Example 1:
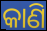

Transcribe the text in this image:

କାଣି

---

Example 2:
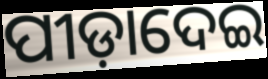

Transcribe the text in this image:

ପୀଡ଼ାଦେଇ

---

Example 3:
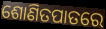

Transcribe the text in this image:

ଶୋଣିତପାତରେ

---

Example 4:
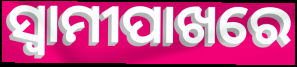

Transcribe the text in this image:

ସ୍ୱାମୀପାଖରେ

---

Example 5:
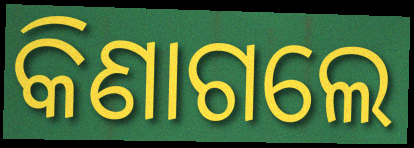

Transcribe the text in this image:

କିଣାଗଲେ